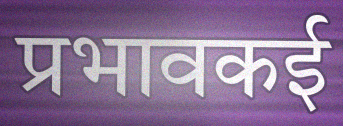
प्रभावकई